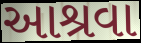
આશ્રવા